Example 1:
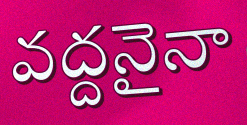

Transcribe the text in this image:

వద్దనైనా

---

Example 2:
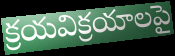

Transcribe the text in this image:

క్రయవిక్రయాలపై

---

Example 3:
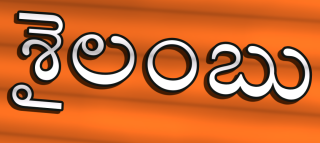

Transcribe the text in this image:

శైలంబు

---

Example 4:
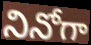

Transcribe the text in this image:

నినోగా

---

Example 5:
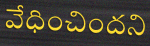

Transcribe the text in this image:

వేధించిందని